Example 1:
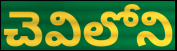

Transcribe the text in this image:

చెవిలోని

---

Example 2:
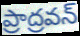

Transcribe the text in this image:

ప్రాద్రవన్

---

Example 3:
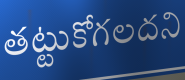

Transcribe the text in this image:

తట్టుకోగలదని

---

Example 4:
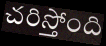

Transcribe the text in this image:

చరిస్తోంది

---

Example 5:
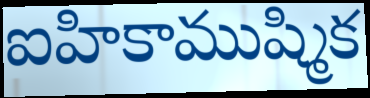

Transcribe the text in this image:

ఐహికాముష్మిక